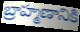
బ్రాహ్మణానికి